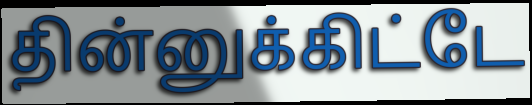
தின்னுக்கிட்டே